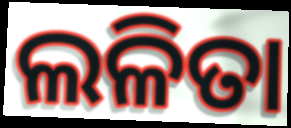
ଲଳିତା